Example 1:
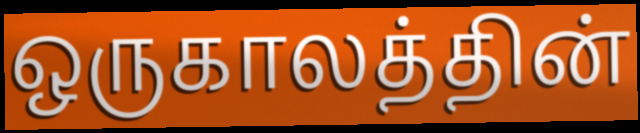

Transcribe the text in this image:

ஒருகாலத்தின்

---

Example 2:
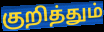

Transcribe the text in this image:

குறித்தும்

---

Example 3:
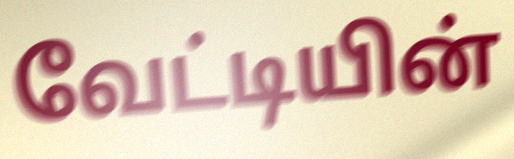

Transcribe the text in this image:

வேட்டியின்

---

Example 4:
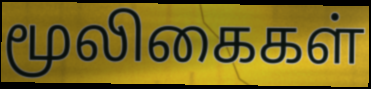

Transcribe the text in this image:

மூலிகைகள்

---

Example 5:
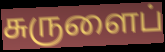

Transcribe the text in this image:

சுருளைப்